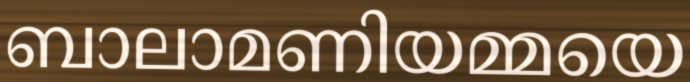
ബാലാമണിയമ്മയെ